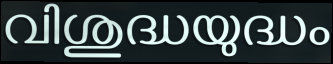
വിശുദ്ധയുദ്ധം